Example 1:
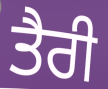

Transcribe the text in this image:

ਤੈਰੀ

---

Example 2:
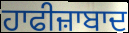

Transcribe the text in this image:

ਹਾਫੀਜ਼ਾਬਾਦ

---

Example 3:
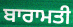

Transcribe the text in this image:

ਬਾਰਾਮਤੀ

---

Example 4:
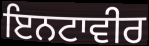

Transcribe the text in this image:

ਇਨਟਾਵੀਰ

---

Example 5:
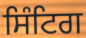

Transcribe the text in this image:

ਸਿੰਟਿਗ